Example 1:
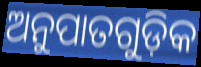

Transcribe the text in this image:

ଅନୁପାତଗୁଡ଼ିକ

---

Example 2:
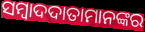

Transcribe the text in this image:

ସମ୍ବାଦଦାତାମାନଙ୍କର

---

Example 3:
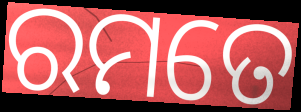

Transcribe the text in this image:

ରମତେ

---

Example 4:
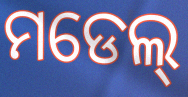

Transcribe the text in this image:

ମଡେଲ୍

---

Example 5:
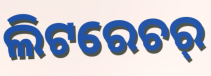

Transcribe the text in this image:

ଲିଟରେଚର୍